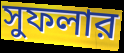
সুফলার